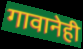
गावानेही